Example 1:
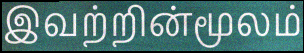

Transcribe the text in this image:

இவற்றின்மூலம்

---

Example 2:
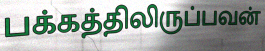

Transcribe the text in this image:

பக்கத்திலிருப்பவன்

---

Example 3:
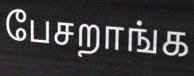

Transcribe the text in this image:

பேசறாங்க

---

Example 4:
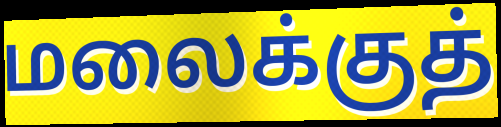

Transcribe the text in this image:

மலைக்குத்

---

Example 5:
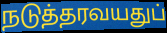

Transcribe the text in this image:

நடுத்தரவயதுப்